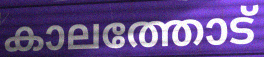
കാലത്തോട്